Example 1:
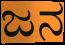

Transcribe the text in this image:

ಜನ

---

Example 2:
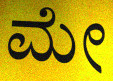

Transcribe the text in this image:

ಮೇ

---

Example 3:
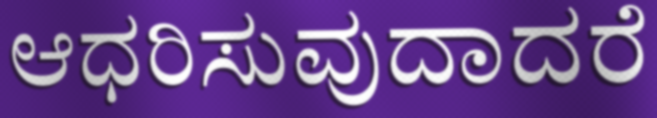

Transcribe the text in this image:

ಆಧರಿಸುವುದಾದರೆ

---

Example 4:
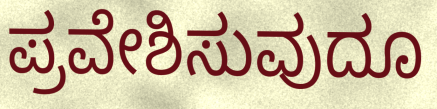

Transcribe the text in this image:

ಪ್ರವೇಶಿಸುವುದೂ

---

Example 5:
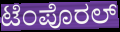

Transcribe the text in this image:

ಟೆಂಪೊರಲ್